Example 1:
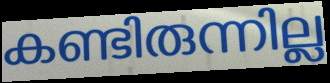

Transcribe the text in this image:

കണ്ടിരുന്നില്ല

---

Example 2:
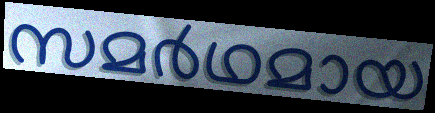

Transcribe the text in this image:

സമർഥമായ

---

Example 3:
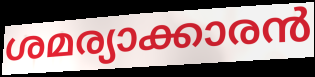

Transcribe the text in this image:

ശമര്യാക്കാരൻ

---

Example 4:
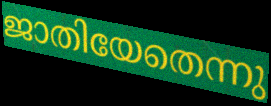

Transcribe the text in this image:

ജാതിയേതെന്നു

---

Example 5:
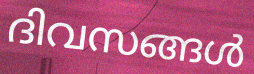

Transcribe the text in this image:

ദിവസങ്ങൾ